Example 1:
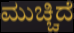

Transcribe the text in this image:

ಮುಚ್ಚಿದೆ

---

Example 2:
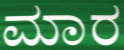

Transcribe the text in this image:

ಮಾರ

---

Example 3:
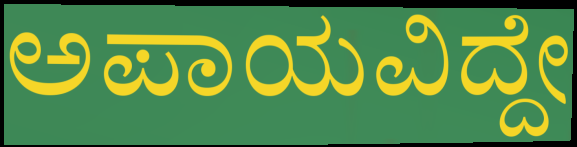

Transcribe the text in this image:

ಅಪಾಯವಿದ್ದೇ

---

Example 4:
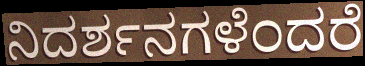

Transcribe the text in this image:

ನಿದರ್ಶನಗಳೆಂದರೆ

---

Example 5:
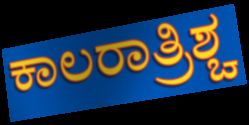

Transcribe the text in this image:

ಕಾಲರಾತ್ರಿಶ್ಚ